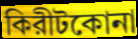
কিরীটকোনা